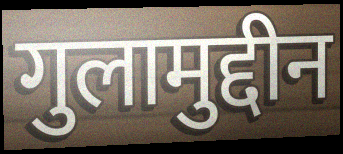
गुलामुद्दीन